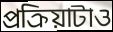
প্রক্রিয়াটাও